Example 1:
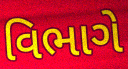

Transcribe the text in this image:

વિભાગે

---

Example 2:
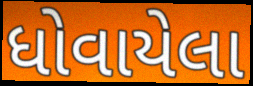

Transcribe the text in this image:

ધોવાયેલા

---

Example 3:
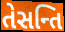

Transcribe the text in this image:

તેસન્તિ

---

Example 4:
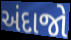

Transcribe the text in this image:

અંદાજો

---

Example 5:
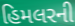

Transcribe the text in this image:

હિમલરની